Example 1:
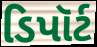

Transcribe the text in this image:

ડિપૉર્ટ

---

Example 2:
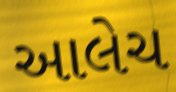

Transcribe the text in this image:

આલેચ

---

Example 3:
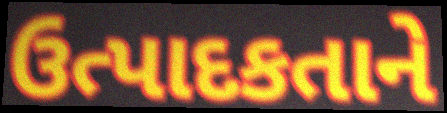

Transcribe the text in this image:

ઉત્પાદકતાને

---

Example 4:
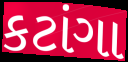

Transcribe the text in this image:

કટાંગા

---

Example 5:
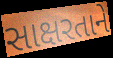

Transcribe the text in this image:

સાક્ષરતાને